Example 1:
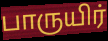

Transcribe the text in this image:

பாருயிர்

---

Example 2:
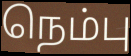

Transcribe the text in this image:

நெம்பு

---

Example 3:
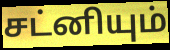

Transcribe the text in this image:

சட்னியும்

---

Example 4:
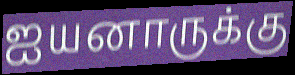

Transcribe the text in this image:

ஐயனாருக்கு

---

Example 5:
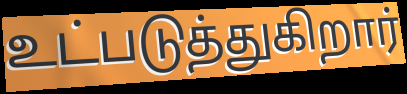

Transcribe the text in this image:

உட்படுத்துகிறார்